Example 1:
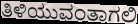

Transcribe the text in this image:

ತಿಳಿಯುವಂತಾಗಲಿ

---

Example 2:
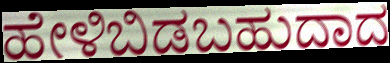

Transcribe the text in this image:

ಹೇಳಿಬಿಡಬಹುದಾದ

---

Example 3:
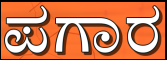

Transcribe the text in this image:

ಪಗಾರ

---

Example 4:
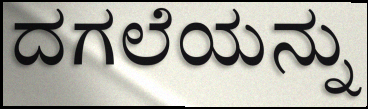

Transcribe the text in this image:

ದಗಲೆಯನ್ನು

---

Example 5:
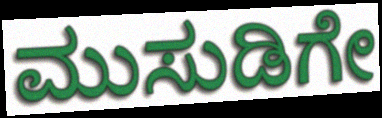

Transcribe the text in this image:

ಮುಸುಡಿಗೇ